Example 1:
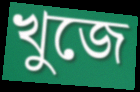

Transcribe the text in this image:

খুজে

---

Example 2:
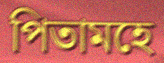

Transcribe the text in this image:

পিতামহে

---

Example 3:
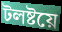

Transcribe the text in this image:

টলষ্টয়ে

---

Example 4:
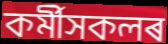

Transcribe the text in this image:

কৰ্মীসকলৰ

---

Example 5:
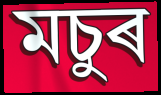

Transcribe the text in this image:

মচুৰ